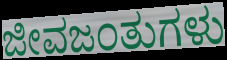
ಜೀವಜಂತುಗಳು